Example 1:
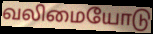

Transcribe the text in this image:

வலிமையோடு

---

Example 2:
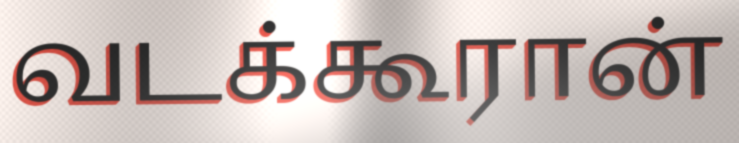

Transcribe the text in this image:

வடக்கூரான்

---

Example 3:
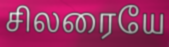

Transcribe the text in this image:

சிலரையே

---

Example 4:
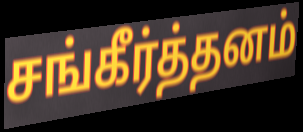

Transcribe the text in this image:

சங்கீர்த்தனம்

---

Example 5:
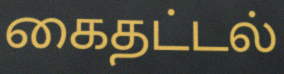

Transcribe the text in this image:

கைதட்டல்